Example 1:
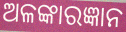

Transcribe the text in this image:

ଅଳଙ୍କାରଜ୍ଞାନ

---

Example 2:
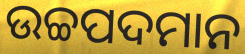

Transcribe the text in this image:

ଉଚ୍ଚପଦମାନ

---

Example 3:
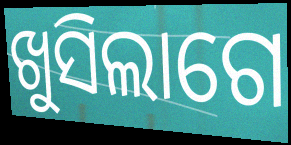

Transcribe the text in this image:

ଖୁସିଲାଗେ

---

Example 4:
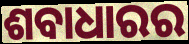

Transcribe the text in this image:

ଶବାଧାରର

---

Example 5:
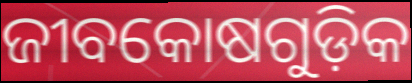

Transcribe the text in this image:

ଜୀବକୋଷଗୁଡ଼ିକ